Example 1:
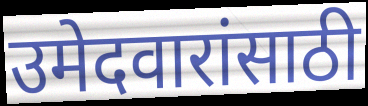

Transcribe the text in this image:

उमेदवारांसाठी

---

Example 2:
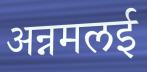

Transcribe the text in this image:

अन्नमलई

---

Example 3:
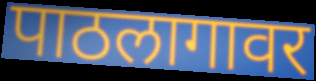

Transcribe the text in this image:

पाठलागावर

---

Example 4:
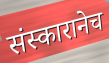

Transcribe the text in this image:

संस्कारानेच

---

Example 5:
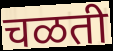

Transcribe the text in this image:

चळती